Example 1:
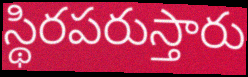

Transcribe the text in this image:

స్థిరపరుస్తారు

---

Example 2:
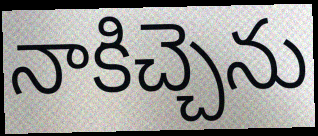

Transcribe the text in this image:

నాకిచ్చెను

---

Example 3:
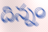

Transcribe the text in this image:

దిన్నం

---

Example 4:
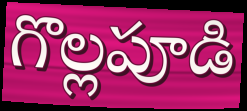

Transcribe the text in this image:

గొల్లపూడి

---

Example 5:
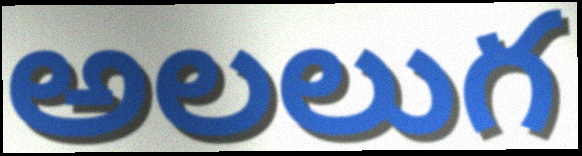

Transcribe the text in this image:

అలలుగ